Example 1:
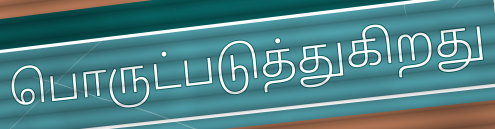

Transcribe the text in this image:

பொருட்படுத்துகிறது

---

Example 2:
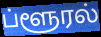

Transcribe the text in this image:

ப்ளூரல்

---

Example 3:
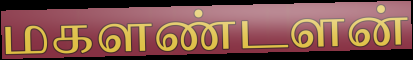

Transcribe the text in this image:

மகளண்டளன்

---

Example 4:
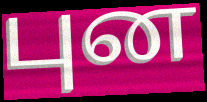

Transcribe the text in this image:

புன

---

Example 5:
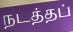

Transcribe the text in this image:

நடத்தப்